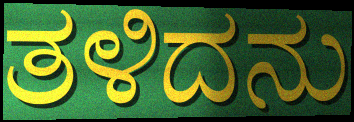
ತಳಿದನು